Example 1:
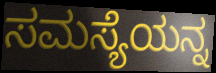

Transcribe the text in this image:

ಸಮಸ್ಯೆಯನ್ನ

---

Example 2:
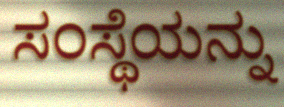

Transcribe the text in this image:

ಸಂಸ್ಥೆಯನ್ನು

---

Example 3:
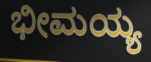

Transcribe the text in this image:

ಭೀಮಯ್ಯ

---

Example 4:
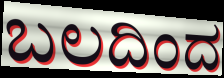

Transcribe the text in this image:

ಬಲದಿಂದ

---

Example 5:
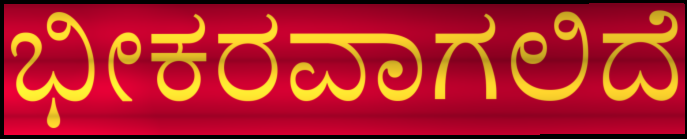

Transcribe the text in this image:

ಭೀಕರವಾಗಲಿದೆ